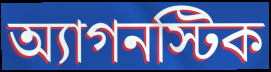
অ্যাগনস্টিক